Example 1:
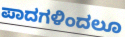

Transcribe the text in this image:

ಪಾದಗಳಿಂದಲೂ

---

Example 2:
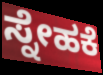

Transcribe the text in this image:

ಸ್ನೇಹಕೆ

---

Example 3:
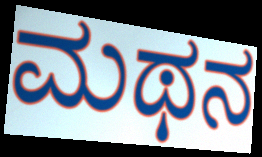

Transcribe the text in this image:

ಮಥನ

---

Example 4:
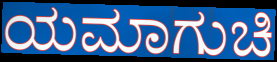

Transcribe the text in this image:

ಯಮಾಗುಚಿ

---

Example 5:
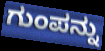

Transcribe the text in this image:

ಗುಂಪನ್ನು